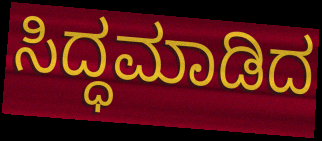
ಸಿದ್ಧಮಾಡಿದ